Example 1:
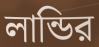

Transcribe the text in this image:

লান্ডির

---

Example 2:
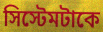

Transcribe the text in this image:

সিস্টেমটাকে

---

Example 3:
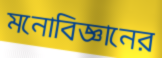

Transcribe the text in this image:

মনোবিজ্ঞানের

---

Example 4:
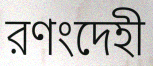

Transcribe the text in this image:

রণংদেহী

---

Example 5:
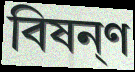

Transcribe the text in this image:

বিষন্ণ